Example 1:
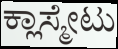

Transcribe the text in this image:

ಕ್ಲಾಸ್ಮೇಟು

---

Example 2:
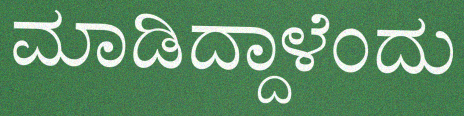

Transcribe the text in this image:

ಮಾಡಿದ್ದಾಳೆಂದು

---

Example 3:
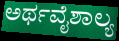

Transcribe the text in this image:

ಅರ್ಥವೈಶಾಲ್ಯ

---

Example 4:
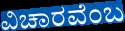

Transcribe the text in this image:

ವಿಚಾರವೆಂಬ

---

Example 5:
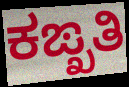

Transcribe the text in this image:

ಕಙ್ಖತಿ